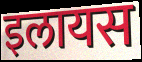
इलायस